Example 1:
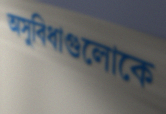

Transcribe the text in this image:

অসুবিধাগুলোকে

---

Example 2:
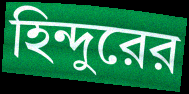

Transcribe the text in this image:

হিন্দুরের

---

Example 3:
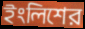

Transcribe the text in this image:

ইংলিশের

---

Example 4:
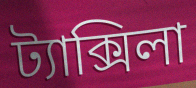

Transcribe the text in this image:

ট্যাক্সিলা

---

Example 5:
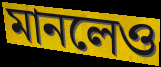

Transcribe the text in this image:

মানলেও